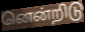
னென்றிடு